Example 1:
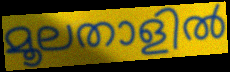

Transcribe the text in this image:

മൂലതാളിൽ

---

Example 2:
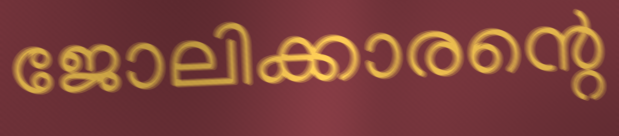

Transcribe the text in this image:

ജോലിക്കാരന്റെ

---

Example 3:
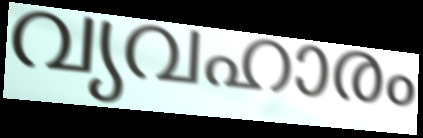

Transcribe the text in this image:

വ്യവഹാരം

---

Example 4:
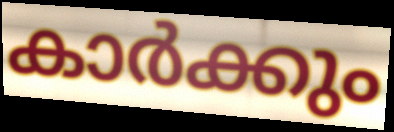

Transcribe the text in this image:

കാർക്കും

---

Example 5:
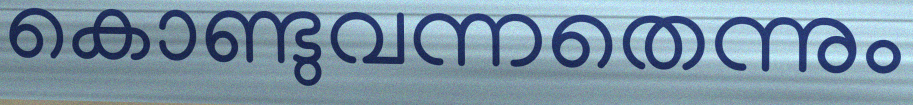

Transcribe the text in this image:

കൊണ്ടുവന്നതെന്നും